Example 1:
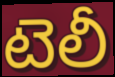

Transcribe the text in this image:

టెలీ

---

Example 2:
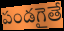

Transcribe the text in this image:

పండగైతే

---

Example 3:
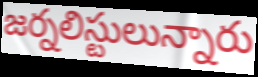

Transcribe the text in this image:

జర్నలిస్టులున్నారు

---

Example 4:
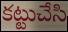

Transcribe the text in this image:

కట్టుచేసి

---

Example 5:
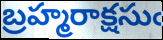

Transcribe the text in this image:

బ్రహ్మరాక్షసుఁ